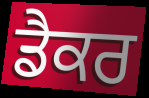
ਡੈਕਰ